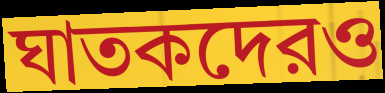
ঘাতকদেরও